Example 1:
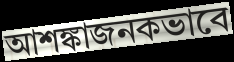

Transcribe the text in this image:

আশঙ্কাজনকভাবে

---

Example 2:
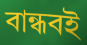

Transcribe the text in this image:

বান্ধবই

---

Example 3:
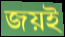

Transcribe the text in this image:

জয়ই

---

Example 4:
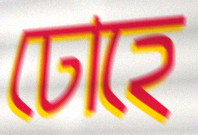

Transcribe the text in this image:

ঢোহে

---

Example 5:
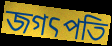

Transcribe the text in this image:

জগৎপতি